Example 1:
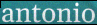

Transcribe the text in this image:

antonio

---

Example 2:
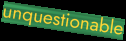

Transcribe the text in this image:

unquestionable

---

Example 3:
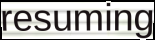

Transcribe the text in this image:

resuming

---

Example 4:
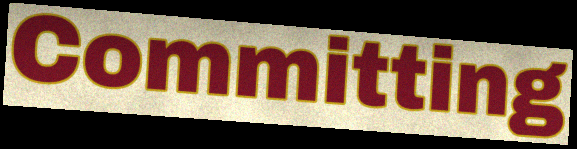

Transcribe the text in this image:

Committing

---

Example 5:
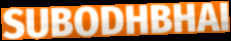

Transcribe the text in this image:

SUBODHBHAI